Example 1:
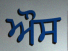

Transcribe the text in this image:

ਔਸ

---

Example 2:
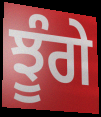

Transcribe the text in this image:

ਝੂੰਗੇ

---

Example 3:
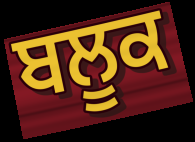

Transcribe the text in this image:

ਬਲੂਕ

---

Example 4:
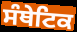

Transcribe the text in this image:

ਸੰਥੇਟਿਕ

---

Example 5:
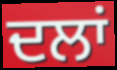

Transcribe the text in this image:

ਦਲਾਂ